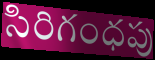
సిరిగంధపు